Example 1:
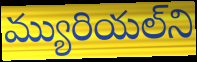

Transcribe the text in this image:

మ్యురియల్‌ని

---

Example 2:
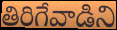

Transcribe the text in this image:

తిరిగేవాడిని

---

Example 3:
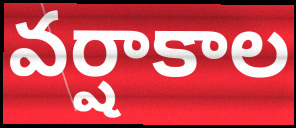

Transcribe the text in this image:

వర్షాకాల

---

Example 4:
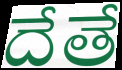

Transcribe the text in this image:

దేతే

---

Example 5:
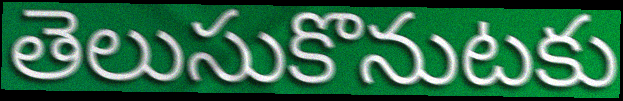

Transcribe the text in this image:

తెలుసుకొనుటకు